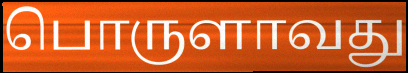
பொருளாவது